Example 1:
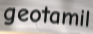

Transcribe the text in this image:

geotamil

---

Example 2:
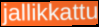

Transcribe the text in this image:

jallikkattu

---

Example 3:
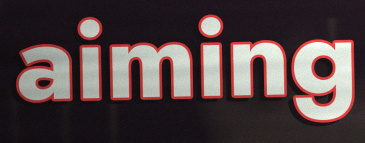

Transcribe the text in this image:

aiming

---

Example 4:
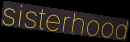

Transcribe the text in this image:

sisterhood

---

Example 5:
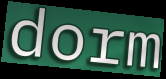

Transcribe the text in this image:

dorm